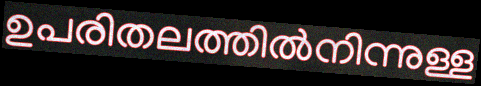
ഉപരിതലത്തിൽനിന്നുള്ള